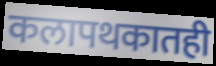
कलापथकातही